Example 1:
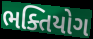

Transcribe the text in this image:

ભક્તિયોગ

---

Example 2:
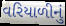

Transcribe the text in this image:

વરિયાળીનું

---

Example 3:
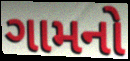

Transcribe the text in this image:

ગામનો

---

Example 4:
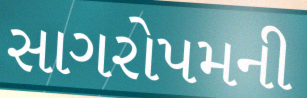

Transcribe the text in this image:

સાગરોપમની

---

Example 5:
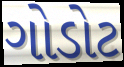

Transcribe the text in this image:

ગોડોટ